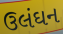
ઉલંઘન